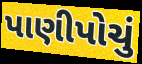
પાણીપોચું